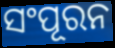
ସଂପୂରନ